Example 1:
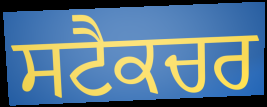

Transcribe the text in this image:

ਸਟੈਕਚਰ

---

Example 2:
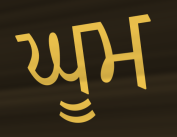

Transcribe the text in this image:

ਘੂਮ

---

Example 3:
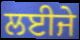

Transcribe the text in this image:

ਲਈਜੇ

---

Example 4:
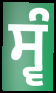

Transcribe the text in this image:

ਸ੍ਵੰ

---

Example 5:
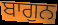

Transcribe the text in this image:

ਬਾਗੁਨ